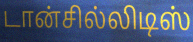
டான்சில்லிடிஸ்